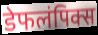
डेफलंपिक्स